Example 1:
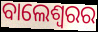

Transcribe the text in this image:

ବାଲେଶ୍ୱରର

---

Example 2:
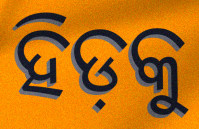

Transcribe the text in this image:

ହିଡ଼କୁ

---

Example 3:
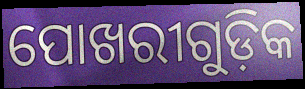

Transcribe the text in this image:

ପୋଖରୀଗୁଡ଼ିକ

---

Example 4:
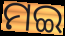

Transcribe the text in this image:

ମଇ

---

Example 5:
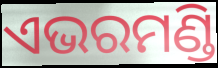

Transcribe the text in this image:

ଏଭରମଣ୍ଡି